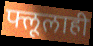
फ्लूलाही